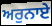
ਅਰੁਨਾਏ